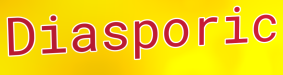
Diasporic